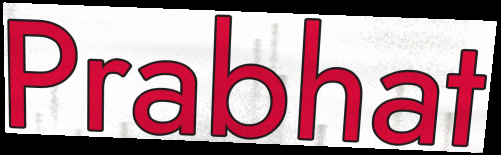
Prabhat